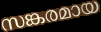
സങ്കരമായ